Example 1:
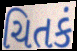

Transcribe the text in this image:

ચિતકં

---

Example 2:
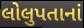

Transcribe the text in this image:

લોલુપતાનાં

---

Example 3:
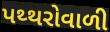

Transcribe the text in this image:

પથ્થરોવાળી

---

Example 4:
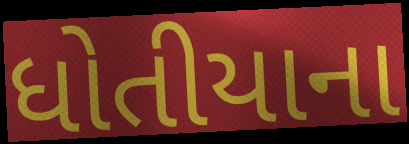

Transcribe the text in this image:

ધોતીયાના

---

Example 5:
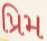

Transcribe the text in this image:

પ્રિમ